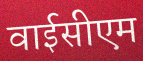
वाईसीएम